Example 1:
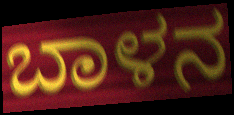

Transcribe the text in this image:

ಬಾಳನ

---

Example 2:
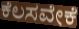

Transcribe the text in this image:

ಕೆಲಸವೇಕೆ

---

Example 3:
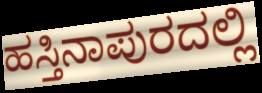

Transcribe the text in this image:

ಹಸ್ತಿನಾಪುರದಲ್ಲಿ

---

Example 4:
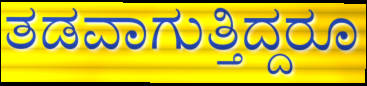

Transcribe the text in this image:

ತಡವಾಗುತ್ತಿದ್ದರೂ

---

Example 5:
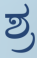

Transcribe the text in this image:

ಶ್ರ